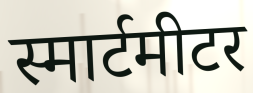
स्मार्टमीटर